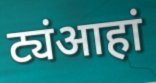
ट्यंआहां